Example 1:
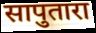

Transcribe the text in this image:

सापुतारा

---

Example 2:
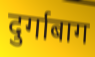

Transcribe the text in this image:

दुर्गाबाग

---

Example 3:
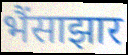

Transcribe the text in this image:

भैंसाझार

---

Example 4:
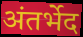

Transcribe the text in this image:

अंतर्भेद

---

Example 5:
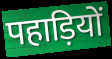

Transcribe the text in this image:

पहाड़ियों